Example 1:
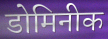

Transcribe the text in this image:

डोमिनीक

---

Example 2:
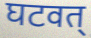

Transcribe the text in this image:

घटवत्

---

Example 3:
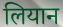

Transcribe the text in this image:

लियान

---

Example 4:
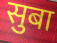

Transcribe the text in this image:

सुबा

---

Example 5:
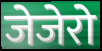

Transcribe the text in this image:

जेजेरो